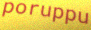
poruppu